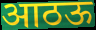
आठऊ